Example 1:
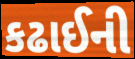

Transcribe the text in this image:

કઢાઈની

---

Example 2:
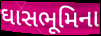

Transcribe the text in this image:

ઘાસભૂમિના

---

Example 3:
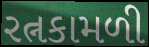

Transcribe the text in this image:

રત્નકામળી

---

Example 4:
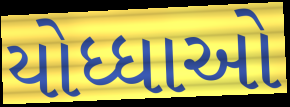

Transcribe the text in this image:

યોધ્ધાઓ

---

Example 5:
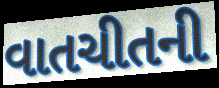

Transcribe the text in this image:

વાતચીતની